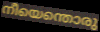
നീയെന്തൊരു